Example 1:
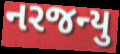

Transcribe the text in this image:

નરજન્યુ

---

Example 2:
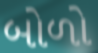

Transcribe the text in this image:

બોળો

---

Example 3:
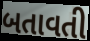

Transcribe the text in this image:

બતાવતી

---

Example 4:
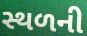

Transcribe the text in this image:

સ્થળની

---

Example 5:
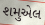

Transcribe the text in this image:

શમુએલ